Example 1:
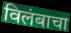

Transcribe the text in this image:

विलंबाचा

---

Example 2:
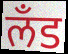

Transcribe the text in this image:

लँड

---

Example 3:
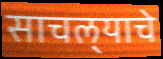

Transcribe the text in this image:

साचल्याचे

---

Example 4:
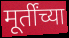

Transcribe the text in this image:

मूर्तींच्या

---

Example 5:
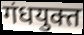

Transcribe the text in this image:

गंधयुक्‍त